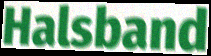
Halsband